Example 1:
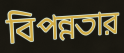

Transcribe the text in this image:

বিপন্নতার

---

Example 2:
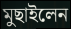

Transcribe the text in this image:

মুছাইলেন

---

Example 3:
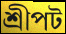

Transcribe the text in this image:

শ্রীপট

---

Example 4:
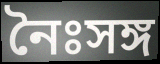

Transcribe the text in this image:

নৈঃসঙ্গ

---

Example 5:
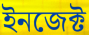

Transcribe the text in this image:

ইনজেক্ট